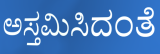
ಅಸ್ತಮಿಸಿದಂತೆ